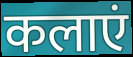
कलाएं